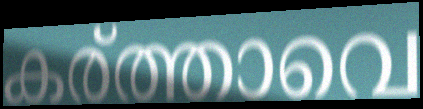
കര്ത്താവെ